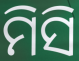
ମିସି